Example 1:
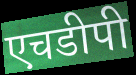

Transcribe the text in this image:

एचडीपी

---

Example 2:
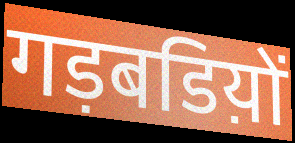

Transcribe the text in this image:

गड़बडिय़ों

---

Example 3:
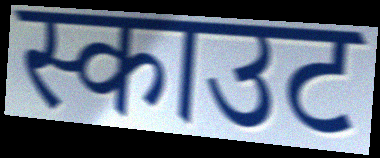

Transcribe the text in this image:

स्काउट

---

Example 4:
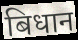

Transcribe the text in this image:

बिधान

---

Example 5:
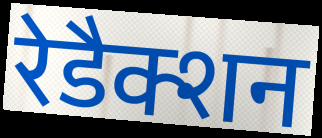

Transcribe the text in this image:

रेडैक्शन